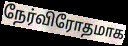
நேர்விரோதமாக